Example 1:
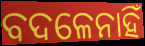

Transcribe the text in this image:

ବଦଳେନାହିଁ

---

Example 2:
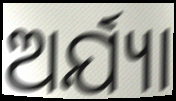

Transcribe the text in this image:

ଅର୍ଯ୍ୟା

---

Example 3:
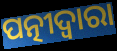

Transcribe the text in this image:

ପତ୍ନୀଦ୍ୱାରା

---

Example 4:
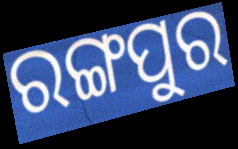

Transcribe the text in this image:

ରଙ୍ଗପୁର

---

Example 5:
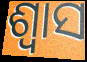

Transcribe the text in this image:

ଶ୍ୱାସ